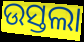
ଉସ୍ତଲା